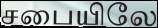
சபையிலே